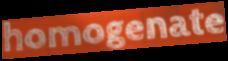
homogenate